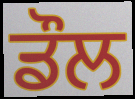
ਡੌਲ